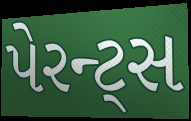
પેરન્ટ્સ